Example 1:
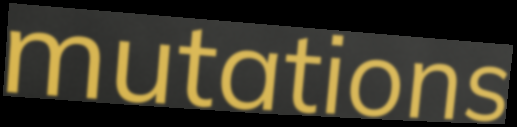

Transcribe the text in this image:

mutations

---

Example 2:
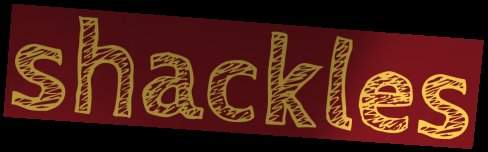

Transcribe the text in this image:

shackles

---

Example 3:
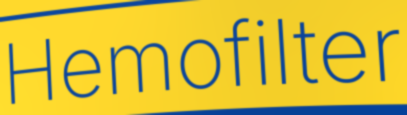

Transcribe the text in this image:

Hemofilter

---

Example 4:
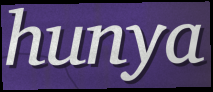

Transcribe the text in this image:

hunya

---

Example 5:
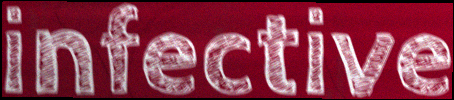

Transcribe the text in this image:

infective